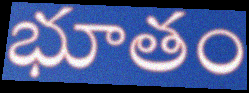
భూతం